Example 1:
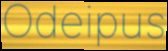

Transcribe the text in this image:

Odeipus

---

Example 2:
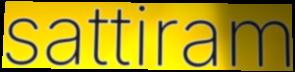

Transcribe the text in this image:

sattiram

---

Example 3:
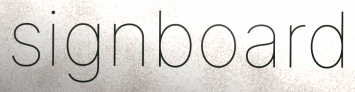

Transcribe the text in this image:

signboard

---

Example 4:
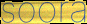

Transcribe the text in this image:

soora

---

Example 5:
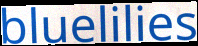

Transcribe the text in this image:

bluelilies